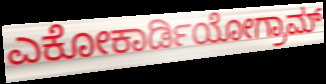
ಎಕೋಕಾರ್ಡಿಯೋಗ್ರಾಮ್